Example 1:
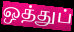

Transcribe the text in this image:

ஒத்துப்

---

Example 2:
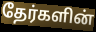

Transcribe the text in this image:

தேர்களின்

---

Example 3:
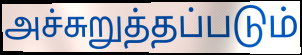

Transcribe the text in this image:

அச்சுறுத்தப்படும்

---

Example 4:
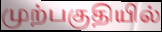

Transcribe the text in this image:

முற்பகுதியில்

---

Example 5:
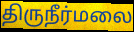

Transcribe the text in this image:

திருநீர்மலை